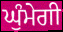
ਘੁੰਮੇਗੀ